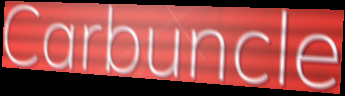
Carbuncle